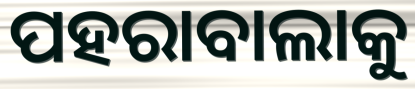
ପହରାବାଲାକୁ